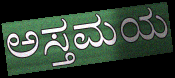
ಅಸ್ತಮಯ